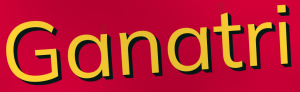
Ganatri